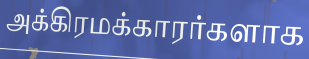
அக்கிரமக்காரர்களாக